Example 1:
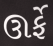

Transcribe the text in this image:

ઊર્ફે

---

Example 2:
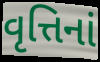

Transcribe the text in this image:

વૃત્તિનાં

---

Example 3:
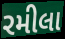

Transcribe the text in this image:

રમીલા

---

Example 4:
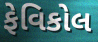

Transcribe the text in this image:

ફેવિકોલ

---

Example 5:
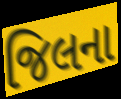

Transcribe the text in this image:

જિલના